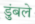
डुंबले